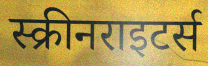
स्क्रीनराइटर्स